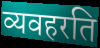
व्यवहरति